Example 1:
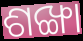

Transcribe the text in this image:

ଶଙ୍ଖା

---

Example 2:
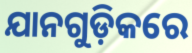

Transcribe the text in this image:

ଯାନଗୁଡ଼ିକରେ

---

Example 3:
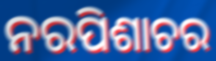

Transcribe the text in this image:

ନରପିଶାଚର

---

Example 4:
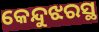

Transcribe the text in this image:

କେନ୍ଦୁଝରସ୍ଥ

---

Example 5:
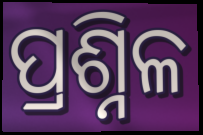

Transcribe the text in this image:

ପ୍ରଶ୍ନିଳ